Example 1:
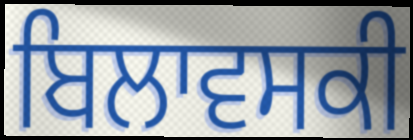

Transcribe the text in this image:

ਬਿਲਾਵਸਕੀ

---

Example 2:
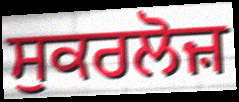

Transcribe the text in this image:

ਸੁਕਰਲੋਜ਼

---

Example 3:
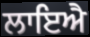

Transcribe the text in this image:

ਲਾਇਐ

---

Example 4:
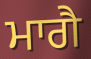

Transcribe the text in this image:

ਮਾਗੈ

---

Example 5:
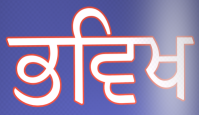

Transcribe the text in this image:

ਭਵਿਖ